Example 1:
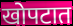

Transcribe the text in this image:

खोपटात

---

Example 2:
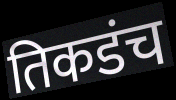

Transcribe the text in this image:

तिकडंच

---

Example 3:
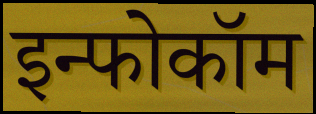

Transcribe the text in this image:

इन्फोकॉम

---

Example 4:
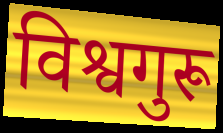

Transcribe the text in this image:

विश्वगुरू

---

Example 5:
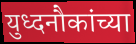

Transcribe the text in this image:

युध्दनौकांच्या